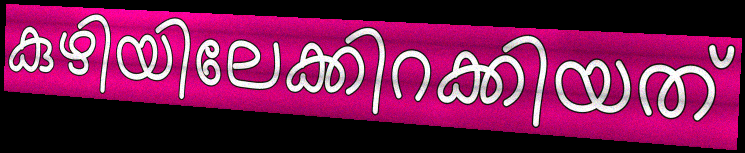
കുഴിയിലേക്കിറക്കിയത്